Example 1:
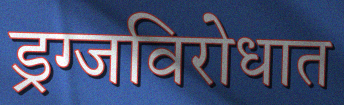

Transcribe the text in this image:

ड्रग्जविरोधात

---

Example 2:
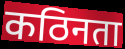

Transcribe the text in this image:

कठिनता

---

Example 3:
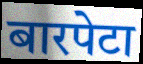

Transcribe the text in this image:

बारपेटा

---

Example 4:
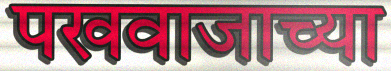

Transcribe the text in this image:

पखवाजाच्या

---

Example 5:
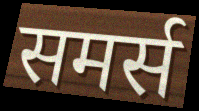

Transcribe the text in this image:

समर्स